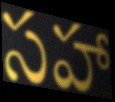
సహా